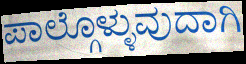
ಪಾಲ್ಗೊಳ್ಳುವುದಾಗಿ